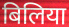
बिलिया